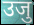
उजु